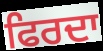
ਫਿਰਦਾ